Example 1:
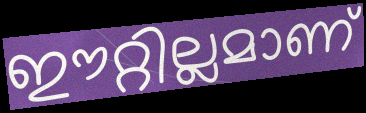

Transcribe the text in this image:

ഈറ്റില്ലമാണ്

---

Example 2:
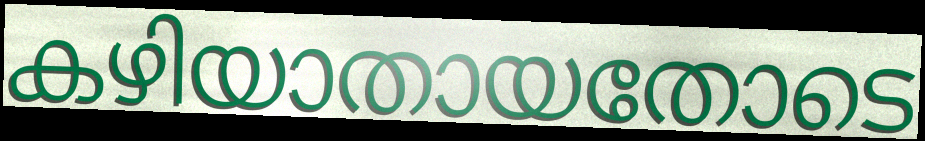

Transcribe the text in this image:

കഴിയാതായതോടെ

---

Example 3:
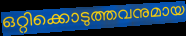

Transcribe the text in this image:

ഒറ്റിക്കൊടുത്തവനുമായ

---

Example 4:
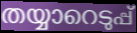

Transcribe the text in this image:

തയ്യാറെടുപ്പ്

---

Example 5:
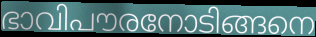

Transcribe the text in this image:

ഭാവിപൗരനോടിങ്ങനെ